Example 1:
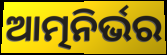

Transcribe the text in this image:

ଆତ୍ମନିର୍ଭର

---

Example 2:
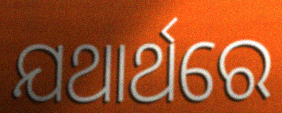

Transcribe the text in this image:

ଯଥାର୍ଥରେ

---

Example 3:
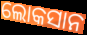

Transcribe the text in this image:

ଲୋକସାନ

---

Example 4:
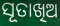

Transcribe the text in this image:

ସୂତାଖିଅ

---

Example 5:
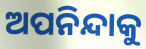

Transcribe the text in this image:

ଅପନିନ୍ଦାକୁ